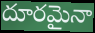
దూరమైనా